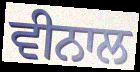
ਵੀਨਾਲ